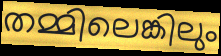
തമ്മിലെങ്കിലും